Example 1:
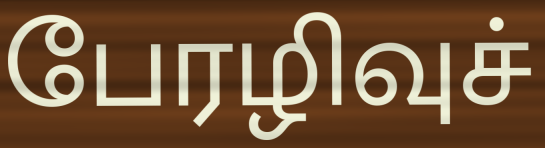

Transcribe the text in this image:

பேரழிவுச்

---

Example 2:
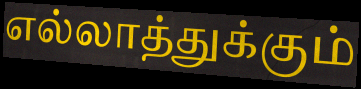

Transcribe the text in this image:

எல்லாத்துக்கும்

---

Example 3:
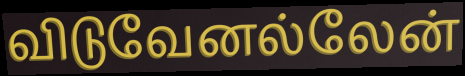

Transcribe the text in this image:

விடுவேனல்லேன்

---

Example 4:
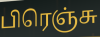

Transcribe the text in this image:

பிரெஞ்சு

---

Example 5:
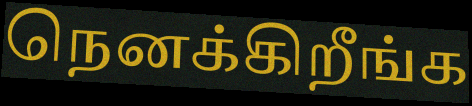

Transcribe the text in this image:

நெனக்கிறீங்க